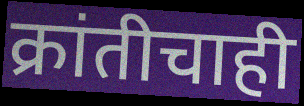
क्रांतीचाही